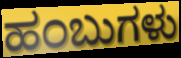
ಹಂಬುಗಳು